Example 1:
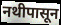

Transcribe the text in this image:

नथीपासून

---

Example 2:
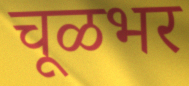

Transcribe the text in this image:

चूळभर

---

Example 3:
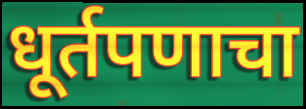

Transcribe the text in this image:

धूर्तपणाचा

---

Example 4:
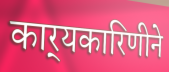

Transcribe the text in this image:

कार्यकारिणीने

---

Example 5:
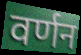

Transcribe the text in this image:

वर्णन